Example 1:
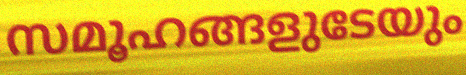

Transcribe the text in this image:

സമൂഹങ്ങളുടേയും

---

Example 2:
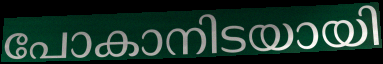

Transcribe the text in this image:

പോകാനിടയായി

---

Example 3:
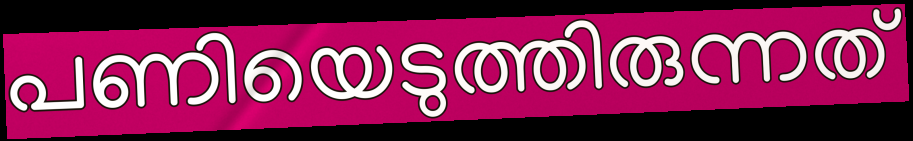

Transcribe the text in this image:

പണിയെടുത്തിരുന്നത്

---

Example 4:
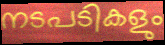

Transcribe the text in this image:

നടപടികളും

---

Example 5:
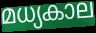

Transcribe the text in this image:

മധ്യകാല